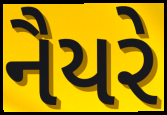
નૈયરે